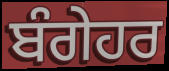
ਬੰਗੇਹਰ